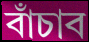
বাঁচাব